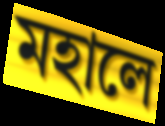
মহালে